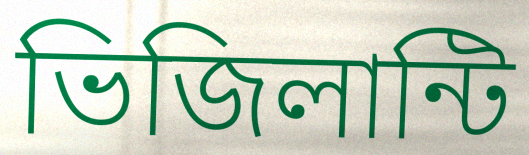
ভিজিলান্টি